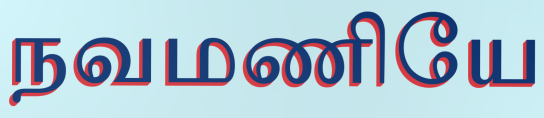
நவமணியே